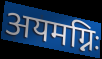
अयमग्निः